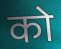
को